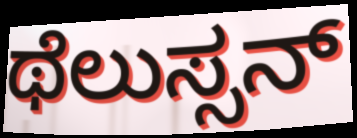
ಥೆಲುಸ್ಸನ್